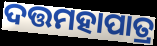
ଦତ୍ତମହାପାତ୍ର